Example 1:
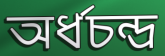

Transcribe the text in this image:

অর্ধচন্দ্র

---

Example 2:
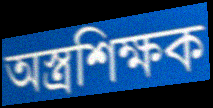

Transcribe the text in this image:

অস্ত্রশিক্ষক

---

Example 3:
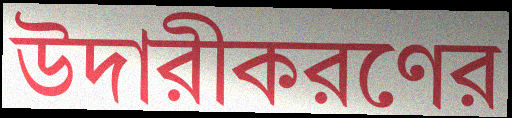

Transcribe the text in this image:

উদারীকরণের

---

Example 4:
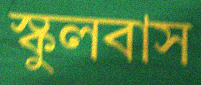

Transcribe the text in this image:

স্কুলবাস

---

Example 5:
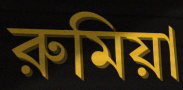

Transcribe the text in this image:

রুমিয়া